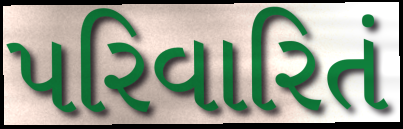
પરિવારિતં